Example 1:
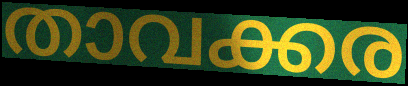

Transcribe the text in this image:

താവക്കര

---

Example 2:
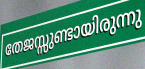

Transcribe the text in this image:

തേജസ്സുണ്ടായിരുന്നു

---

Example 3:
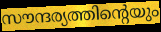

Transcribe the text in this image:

സൗന്ദര്യത്തിന്റെയും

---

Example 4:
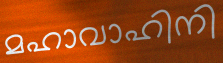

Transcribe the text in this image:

മഹാവാഹിനി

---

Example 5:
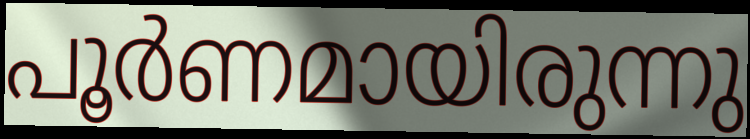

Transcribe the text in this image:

പൂർണമായിരുന്നു